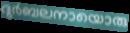
ദുർബലനായൊരു